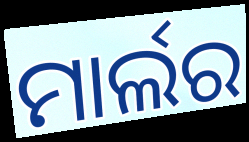
ମାର୍ଲର